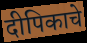
दीपिकाचे